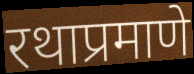
रथाप्रमाणे